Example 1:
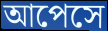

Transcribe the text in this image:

আপেসে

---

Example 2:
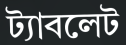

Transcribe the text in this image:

ট্যাবলেট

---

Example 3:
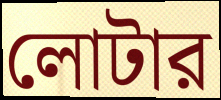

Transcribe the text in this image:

লোটার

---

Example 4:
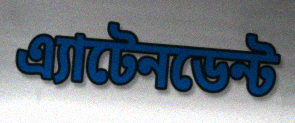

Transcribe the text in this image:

এ্যাটেনডেন্ট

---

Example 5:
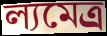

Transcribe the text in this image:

ল্যমেত্র্র